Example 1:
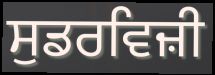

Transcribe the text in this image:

ਸੁਡਰਵਿਜ਼ੀ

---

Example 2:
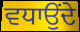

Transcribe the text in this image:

ਵਧਾਉੁਂਦੇ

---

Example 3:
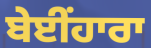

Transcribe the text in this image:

ਬੇਈਂਹਾਰਾ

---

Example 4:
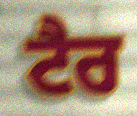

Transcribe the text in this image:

ਟੈਰ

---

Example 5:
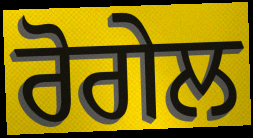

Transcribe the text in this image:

ਰੋਗੇਲ